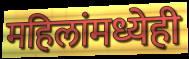
महिलांमध्येही